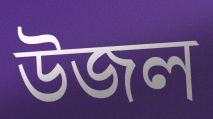
উজল